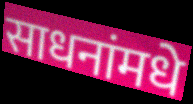
साधनांमधे